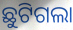
ଛୁଟିଗଲା